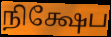
நிக்ஷேப